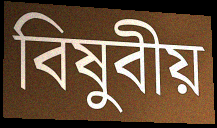
বিষুবীয়